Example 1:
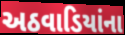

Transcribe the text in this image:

અઠવાડિયાંના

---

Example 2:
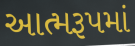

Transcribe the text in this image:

આત્મરૂપમાં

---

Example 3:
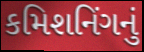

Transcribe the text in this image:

કમિશનિંગનું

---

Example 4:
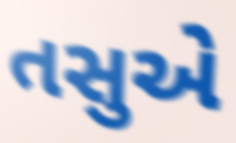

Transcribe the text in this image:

તસુએ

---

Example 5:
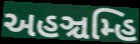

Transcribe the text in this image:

અહઞ્ચમ્હિ